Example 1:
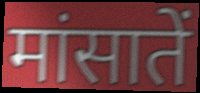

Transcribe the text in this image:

मांसातें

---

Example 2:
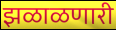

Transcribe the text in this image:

झळाळणारी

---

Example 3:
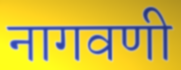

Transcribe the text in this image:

नागवणी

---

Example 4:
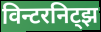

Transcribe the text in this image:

विन्टरनिट्झ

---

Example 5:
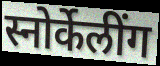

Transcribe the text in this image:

स्नोर्केलींग